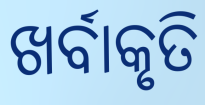
ଖର୍ବାକୃତି